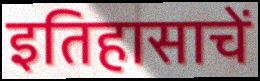
इतिहासाचें